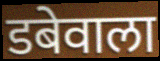
डबेवाला